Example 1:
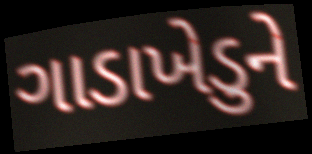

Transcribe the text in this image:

ગાડાખેડુને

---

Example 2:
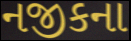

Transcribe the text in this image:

નજીકના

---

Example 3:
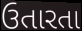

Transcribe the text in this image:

ઉતારતા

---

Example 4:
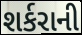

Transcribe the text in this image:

શર્કરાની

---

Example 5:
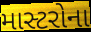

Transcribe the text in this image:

માસ્ટરોના